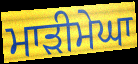
ਮਾੜੀਮੇਘਾ